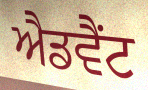
ਐਡਵੈਂਟ